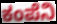
ಕಂಪೆನಿ